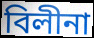
বিলীনা